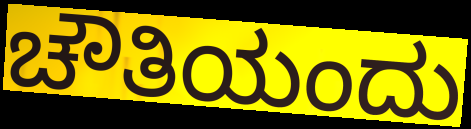
ಚೌತಿಯಂದು